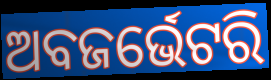
ଅବଜର୍ଭେଟରି